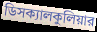
ডিসক্যালকুলিয়ার